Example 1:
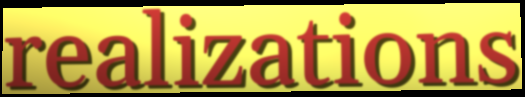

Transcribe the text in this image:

realizations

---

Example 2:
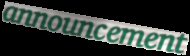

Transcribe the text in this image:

announcement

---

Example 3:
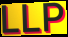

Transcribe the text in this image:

LLP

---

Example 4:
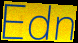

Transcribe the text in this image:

Edn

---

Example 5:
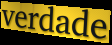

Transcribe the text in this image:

verdade